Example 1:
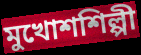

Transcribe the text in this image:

মুখোশশিল্পী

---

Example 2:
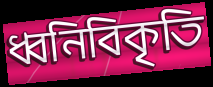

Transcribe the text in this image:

ধ্বনিবিকৃতি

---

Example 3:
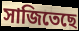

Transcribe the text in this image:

সাজিতেছে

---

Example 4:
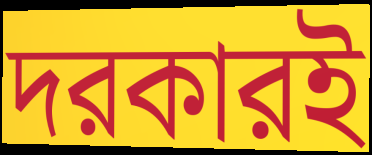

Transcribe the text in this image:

দরকারই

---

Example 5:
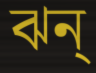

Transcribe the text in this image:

ঝন্